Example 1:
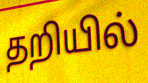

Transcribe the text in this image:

தறியில்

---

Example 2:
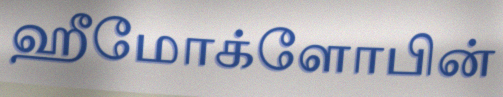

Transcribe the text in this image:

ஹீமோக்ளோபின்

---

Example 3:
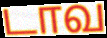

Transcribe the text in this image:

டாவ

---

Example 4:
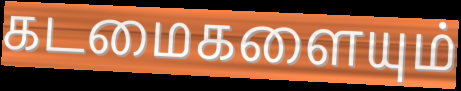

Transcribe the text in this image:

கடமைகளையும்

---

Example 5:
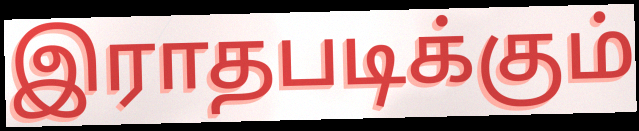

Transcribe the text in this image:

இராதபடிக்கும்